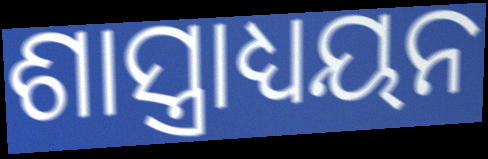
ଶାସ୍ତ୍ରାଧ୍ୟୟନ